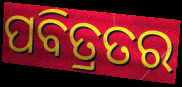
ପବିତ୍ରତର